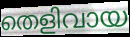
തെളിവായ